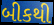
બીકથી